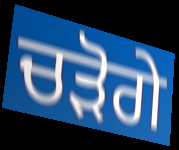
ਚੜੋਗੇ